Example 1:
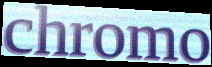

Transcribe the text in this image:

chromo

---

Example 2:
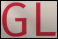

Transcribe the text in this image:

GL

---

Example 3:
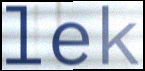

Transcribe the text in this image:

lek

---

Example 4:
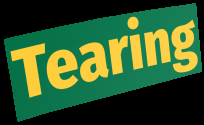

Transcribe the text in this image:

Tearing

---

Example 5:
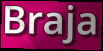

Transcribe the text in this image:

Braja